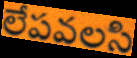
లేపవలసి